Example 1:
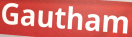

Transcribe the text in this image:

Gautham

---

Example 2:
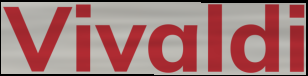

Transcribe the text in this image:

Vivaldi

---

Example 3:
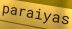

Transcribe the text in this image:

paraiyas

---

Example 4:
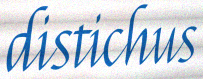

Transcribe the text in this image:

distichus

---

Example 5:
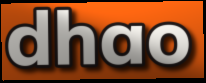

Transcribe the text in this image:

dhao